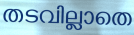
തടവില്ലാതെ